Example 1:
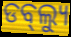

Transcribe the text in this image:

ଡବ୍‌ଲ୍ୟୁ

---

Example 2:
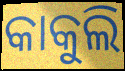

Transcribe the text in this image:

କାକୁଲି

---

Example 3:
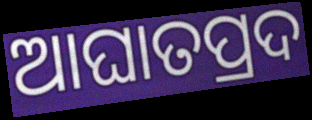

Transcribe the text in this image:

ଆଘାତପ୍ରଦ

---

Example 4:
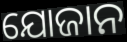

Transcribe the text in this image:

ଯୋଜାନ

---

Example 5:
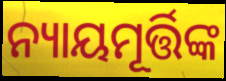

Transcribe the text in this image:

ନ୍ୟାୟମୂର୍ତ୍ତିଙ୍କ